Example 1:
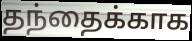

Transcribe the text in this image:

தந்தைக்காக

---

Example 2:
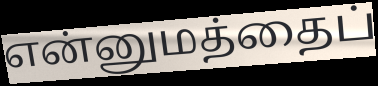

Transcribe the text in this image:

என்னுமத்தைப்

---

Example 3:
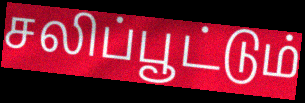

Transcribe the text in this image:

சலிப்பூட்டும்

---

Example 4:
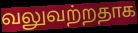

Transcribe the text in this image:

வலுவற்றதாக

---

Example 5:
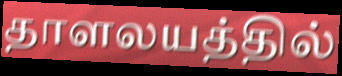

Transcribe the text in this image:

தாளலயத்தில்